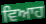
ਵਿਆਹ